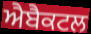
ਐਬੈਕਟਲ